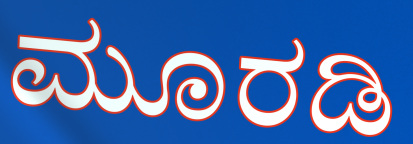
ಮೂರಡಿ